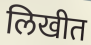
लिखीत